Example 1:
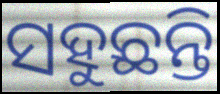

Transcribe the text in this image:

ସହୁଛନ୍ତି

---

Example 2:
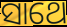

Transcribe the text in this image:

ସାଥେ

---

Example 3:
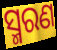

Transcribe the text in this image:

ସ୍ମରଣ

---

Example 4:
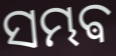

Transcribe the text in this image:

ସମ୍ଭଵ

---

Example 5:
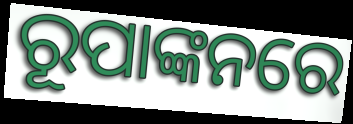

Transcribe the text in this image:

ରୂପାଙ୍କନରେ